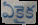
ఏకైక